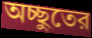
অচ্ছুতের